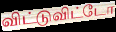
விட்டுவிட்டோ